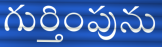
గుర్తింపును